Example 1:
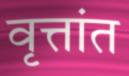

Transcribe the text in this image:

वृत्तांत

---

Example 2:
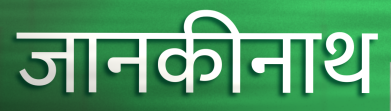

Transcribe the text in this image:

जानकीनाथ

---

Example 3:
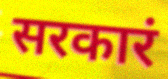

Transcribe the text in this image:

सरकारं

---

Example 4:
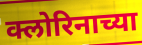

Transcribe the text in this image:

क्लोरिनाच्या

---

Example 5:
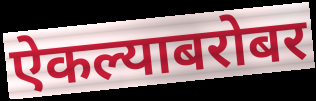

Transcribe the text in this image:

ऐकल्याबरोबर